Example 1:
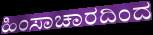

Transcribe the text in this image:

ಹಿಂಸಾಚಾರದಿಂದ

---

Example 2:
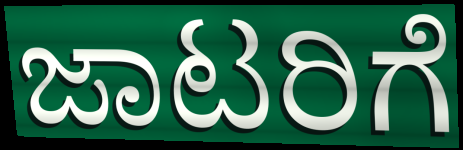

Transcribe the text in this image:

ಜಾಟರಿಗೆ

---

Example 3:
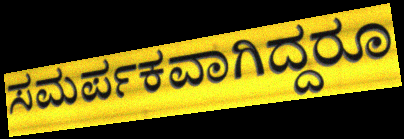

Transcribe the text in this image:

ಸಮರ್ಪಕವಾಗಿದ್ದರೂ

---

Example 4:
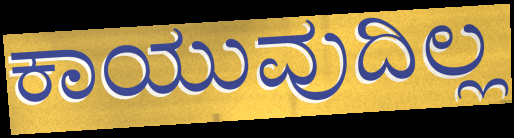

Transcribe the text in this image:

ಕಾಯುವುದಿಲ್ಲ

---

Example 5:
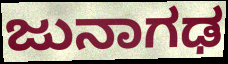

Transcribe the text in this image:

ಜುನಾಗಢ